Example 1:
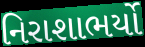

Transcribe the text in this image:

નિરાશાભર્યો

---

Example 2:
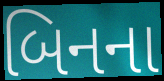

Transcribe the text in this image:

બિનના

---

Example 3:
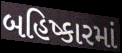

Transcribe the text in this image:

બહિષ્કારમાં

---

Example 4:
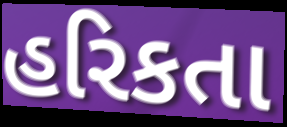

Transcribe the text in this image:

હરિકતા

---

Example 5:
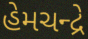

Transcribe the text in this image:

હેમચન્દ્રે